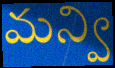
మన్వి